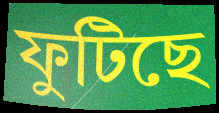
ফুটিছে